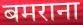
बमराना